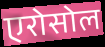
एरोसोल